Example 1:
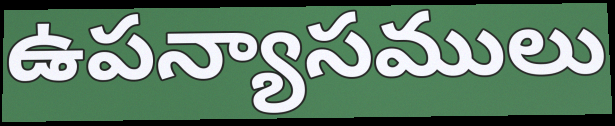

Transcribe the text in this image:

ఉపన్యాసములు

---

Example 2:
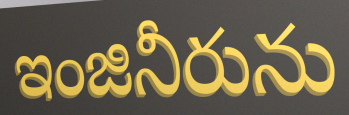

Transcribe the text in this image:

ఇంజినీరును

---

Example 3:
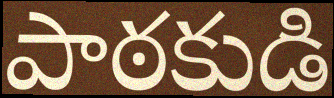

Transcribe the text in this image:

పాఠకుడి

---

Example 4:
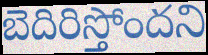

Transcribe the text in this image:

బెదిరిస్తోందని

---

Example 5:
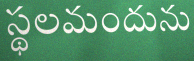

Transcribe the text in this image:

స్థలమందును